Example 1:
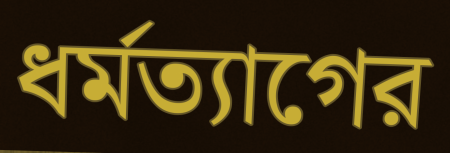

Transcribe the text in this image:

ধর্মত্যাগের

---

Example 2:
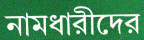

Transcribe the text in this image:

নামধারীদের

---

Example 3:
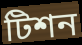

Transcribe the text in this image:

টিশন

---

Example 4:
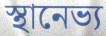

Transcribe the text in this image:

স্থানেভ্য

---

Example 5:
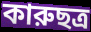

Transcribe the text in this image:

কারুছত্র